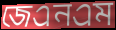
জেএনএম